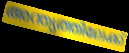
അന്ത്യത്തിലേക്ക്